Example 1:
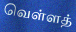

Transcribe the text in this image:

வெள்ளத்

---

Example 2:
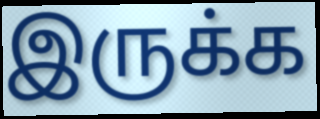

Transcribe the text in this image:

இருக்க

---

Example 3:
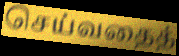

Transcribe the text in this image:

செய்வதைத்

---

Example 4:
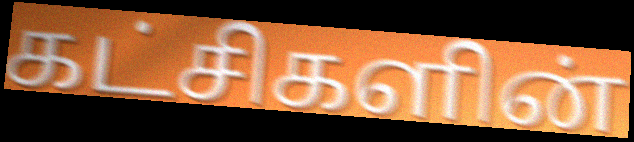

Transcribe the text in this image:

கட்சிகளின்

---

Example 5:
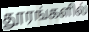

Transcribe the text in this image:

தூரங்களில்